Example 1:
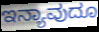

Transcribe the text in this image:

ಇನ್ಯಾವುದೂ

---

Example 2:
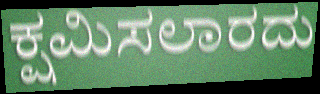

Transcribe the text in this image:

ಕ್ಷಮಿಸಲಾರದು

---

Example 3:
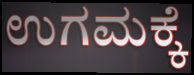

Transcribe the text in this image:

ಉಗಮಕ್ಕೆ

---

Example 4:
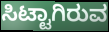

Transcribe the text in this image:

ಸಿಟ್ಟಾಗಿರುವ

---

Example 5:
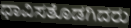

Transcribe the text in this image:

ಧಾವಿಸತೊಡಗಿದರು